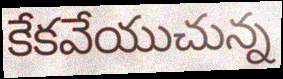
కేకవేయుచున్న